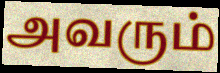
அவரும்